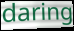
daring